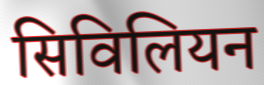
सिविलियन